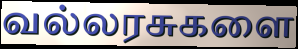
வல்லரசுகளை